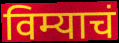
विम्याचं